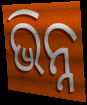
ଭିନ୍ନ